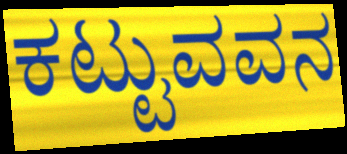
ಕಟ್ಟುವವನ